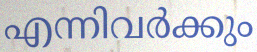
എന്നിവർക്കും